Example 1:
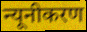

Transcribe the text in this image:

न्यूनीकरण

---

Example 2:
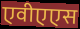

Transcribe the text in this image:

एवीएएस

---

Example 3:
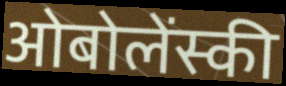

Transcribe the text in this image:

ओबोलेंस्की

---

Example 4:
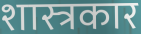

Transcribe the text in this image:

शास्त्रकार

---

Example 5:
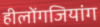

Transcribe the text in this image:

हीलोंगजियांग